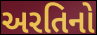
અરતિનો